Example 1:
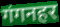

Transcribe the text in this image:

गंगनहर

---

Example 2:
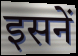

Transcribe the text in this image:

इसनें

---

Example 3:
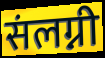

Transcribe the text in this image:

संलग्नी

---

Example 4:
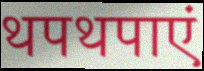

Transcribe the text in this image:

थपथपाएं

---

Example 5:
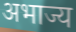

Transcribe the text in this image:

अभाज्य